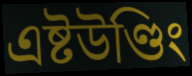
এষ্টউণ্ডিং